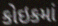
કોઇકમાં